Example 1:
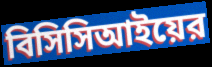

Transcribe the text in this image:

বিসিসিআইয়ের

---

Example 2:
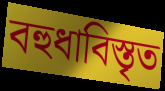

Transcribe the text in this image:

বহুধাবিস্তৃত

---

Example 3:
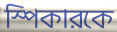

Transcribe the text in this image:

স্পিকারকে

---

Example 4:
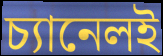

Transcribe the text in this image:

চ্যানেলই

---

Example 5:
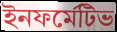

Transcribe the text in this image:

ইনফর্মেটিভ